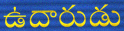
ఉదారుడు